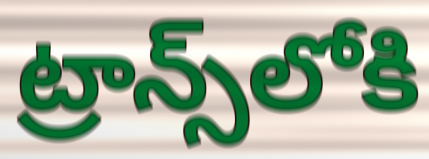
ట్రాన్స్‌లోకి